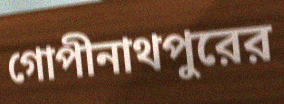
গোপীনাথপুরের